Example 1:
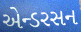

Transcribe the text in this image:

એન્ડરસન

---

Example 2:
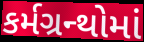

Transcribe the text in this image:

કર્મગ્રન્થોમાં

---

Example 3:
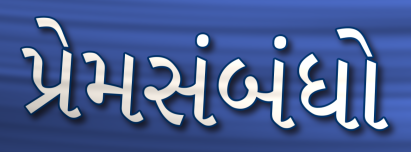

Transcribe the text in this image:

પ્રેમસંબંધો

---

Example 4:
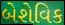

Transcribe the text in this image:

બેશેવિક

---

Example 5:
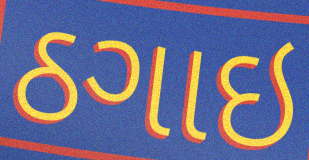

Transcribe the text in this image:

ઠગાઇ